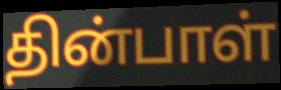
தின்பாள்